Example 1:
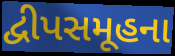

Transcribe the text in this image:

દ્વીપસમૂહના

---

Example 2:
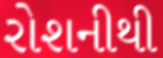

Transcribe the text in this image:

રોશનીથી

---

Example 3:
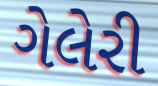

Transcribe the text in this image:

ગેલેરી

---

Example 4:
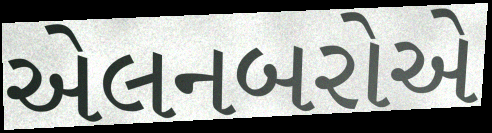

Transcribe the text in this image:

એલનબરોએ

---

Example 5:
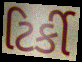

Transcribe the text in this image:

ટિર્કી